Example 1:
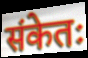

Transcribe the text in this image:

संकेतः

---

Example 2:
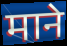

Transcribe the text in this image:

माने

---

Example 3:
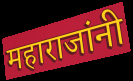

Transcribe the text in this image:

महाराजांनी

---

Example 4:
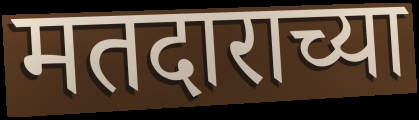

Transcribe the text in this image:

मतदाराच्या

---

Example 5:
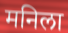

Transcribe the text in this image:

मनिला